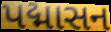
પદ્માસન